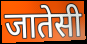
जातेसी